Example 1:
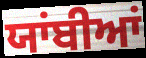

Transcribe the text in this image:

ਯਾਂਬੀਆਂ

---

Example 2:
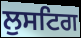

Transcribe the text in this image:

ਲੁਸਟਿਗ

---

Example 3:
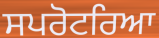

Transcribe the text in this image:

ਸਪਰੋਟਰਿਆ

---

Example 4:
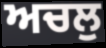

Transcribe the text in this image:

ਅਚਲੁ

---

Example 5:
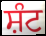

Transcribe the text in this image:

ਸ਼ੰਟ